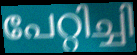
പേറ്റിച്ചി